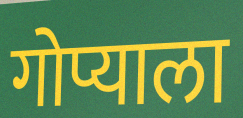
गोप्याला